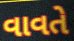
વાવતે